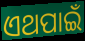
ଏଥପାଇଁ